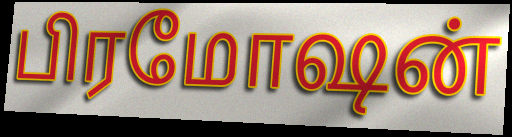
பிரமோஷன்